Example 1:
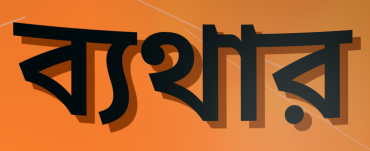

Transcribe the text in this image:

ব্যথার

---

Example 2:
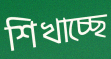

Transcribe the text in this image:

শিখাচ্ছে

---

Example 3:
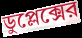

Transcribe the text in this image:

ডুপ্লেক্সের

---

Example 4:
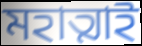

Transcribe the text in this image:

মহাত্মাই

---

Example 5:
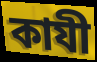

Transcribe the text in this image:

কাযী